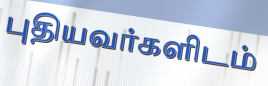
புதியவர்களிடம்